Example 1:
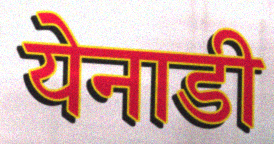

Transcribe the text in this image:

येनाडी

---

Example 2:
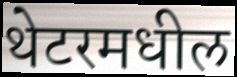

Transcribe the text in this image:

थेटरमधील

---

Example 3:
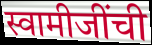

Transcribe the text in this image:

स्वामीजींची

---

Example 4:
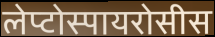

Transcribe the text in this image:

लेप्टोस्पायरोसीस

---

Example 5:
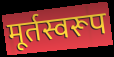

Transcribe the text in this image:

मूर्तस्वरूप